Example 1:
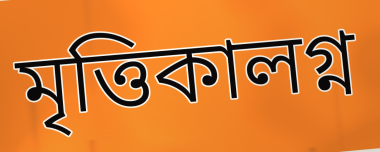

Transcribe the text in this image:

মৃত্তিকালগ্ন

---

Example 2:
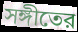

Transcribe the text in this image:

সঙ্গীতের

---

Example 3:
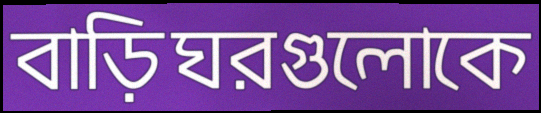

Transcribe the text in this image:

বাড়িঘরগুলোকে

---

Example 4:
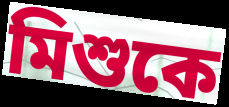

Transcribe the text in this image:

মিশুকে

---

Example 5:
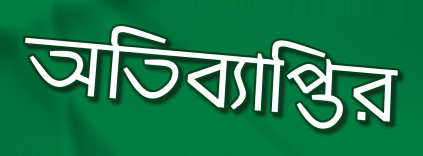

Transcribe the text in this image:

অতিব্যাপ্তির